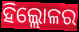
ହିଲ୍ଲୋଳର